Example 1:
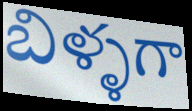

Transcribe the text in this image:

బిళ్ళగా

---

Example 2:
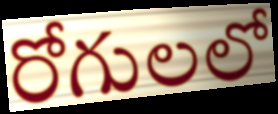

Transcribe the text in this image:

రోగులలో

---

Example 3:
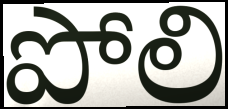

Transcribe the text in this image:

పోలి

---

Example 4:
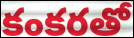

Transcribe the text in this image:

కంకరతో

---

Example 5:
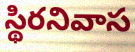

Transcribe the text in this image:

స్థిరనివాస